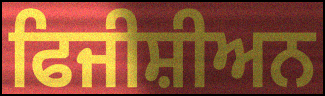
ਫਿਜੀਸ਼ੀਅਨ